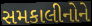
સમકાલીનોને